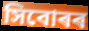
সিবোৰৰ